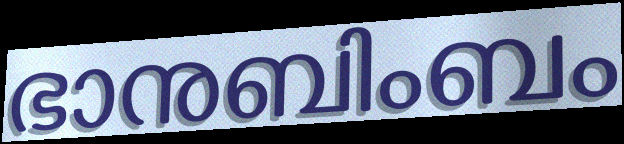
ഭാനുബിംബം